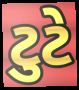
ટુટે